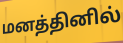
மனத்தினில்